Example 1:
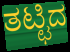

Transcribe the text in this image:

ತಟ್ಟಿದ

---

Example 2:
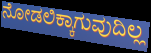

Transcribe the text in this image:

ನೋಡಲಿಕ್ಕಾಗುವುದಿಲ್ಲ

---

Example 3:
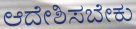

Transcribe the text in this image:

ಆದೇಶಿಸಬೇಕು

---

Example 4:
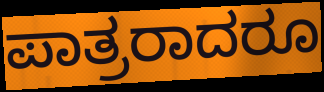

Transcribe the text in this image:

ಪಾತ್ರರಾದರೂ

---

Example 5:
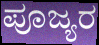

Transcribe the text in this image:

ಪೂಜ್ಯರ